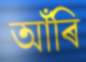
আঁৰি